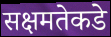
सक्षमतेकडे